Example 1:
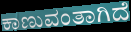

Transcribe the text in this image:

ಕಾಣುವಂತಾಗಿದೆ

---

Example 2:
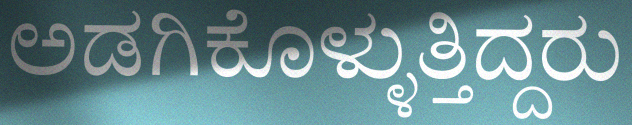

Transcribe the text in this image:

ಅಡಗಿಕೊಳ್ಳುತ್ತಿದ್ದರು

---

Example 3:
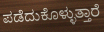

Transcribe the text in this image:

ಪಡೆದುಕೊಳ್ಳುತ್ತಾರೆ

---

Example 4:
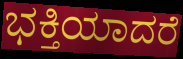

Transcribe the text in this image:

ಭಕ್ತಿಯಾದರೆ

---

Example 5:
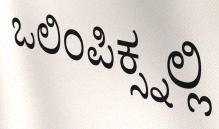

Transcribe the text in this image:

ಒಲಿಂಪಿಕ್ಸ್ನಲ್ಲಿ